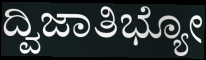
ದ್ವಿಜಾತಿಭ್ಯೋ